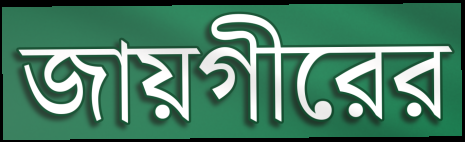
জায়গীরের